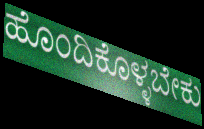
ಹೊಂದಿಕೊಳ್ಳಬೇಕು